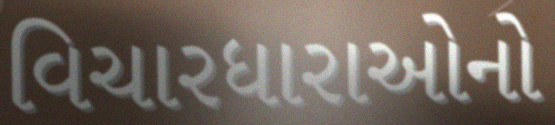
વિચારધારાઓનો